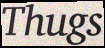
Thugs